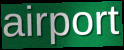
airport